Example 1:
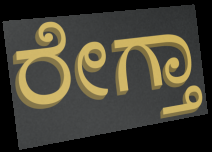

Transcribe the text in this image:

ರೇಗ್ತಾ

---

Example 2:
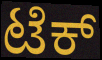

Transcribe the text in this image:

ಟೆಕ್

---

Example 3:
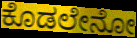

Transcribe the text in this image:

ಕೊಡಲೇನೋ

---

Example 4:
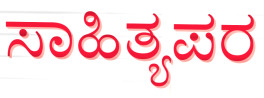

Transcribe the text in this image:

ಸಾಹಿತ್ಯಪರ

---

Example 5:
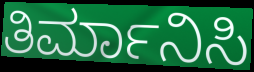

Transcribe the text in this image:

ತಿರ್ಮಾನಿಸಿ